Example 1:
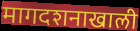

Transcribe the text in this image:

मागदशनाखाली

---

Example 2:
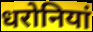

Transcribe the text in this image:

धरोनियां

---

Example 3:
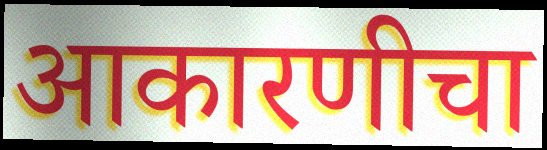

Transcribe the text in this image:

आकारणीचा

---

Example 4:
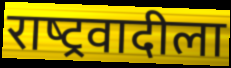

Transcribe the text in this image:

राष्ट्रवादीला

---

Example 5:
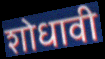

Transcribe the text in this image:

शोधावी